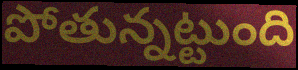
పోతున్నట్టుంది